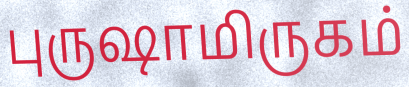
புருஷாமிருகம்